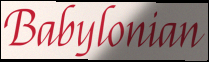
Babylonian